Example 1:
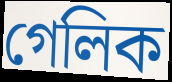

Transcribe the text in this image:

গেলিক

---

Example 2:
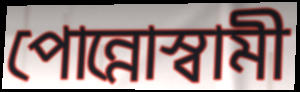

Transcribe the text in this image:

পোন্নোস্বামী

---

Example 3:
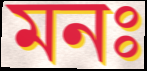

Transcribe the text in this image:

মনঃ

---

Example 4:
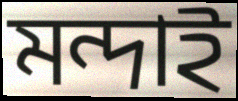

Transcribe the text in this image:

মন্দাই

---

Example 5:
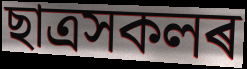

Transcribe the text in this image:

ছাত্ৰসকলৰ